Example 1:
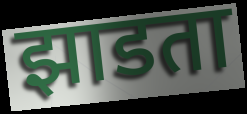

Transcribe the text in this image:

झाडता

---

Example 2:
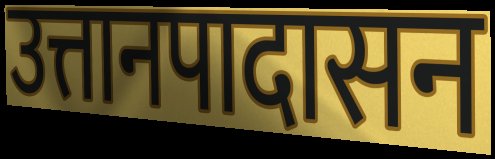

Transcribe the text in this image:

उत्तानपादासन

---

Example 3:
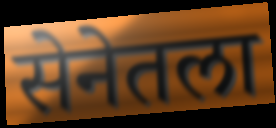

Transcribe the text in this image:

सेनेतला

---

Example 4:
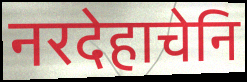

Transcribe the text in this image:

नरदेहाचेनि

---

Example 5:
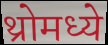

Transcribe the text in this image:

थ्रोमध्ये